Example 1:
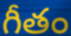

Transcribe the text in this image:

గీతం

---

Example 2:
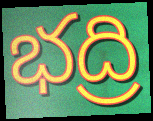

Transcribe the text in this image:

భద్రి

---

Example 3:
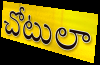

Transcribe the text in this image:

చోటులా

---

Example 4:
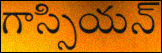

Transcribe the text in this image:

గాస్సియన్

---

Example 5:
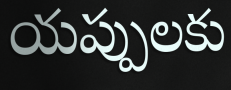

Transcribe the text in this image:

యప్పులకు